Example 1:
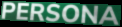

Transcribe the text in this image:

PERSONA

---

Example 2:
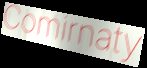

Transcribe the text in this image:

Comirnaty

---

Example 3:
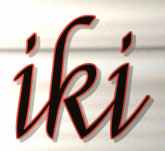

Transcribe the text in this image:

iki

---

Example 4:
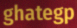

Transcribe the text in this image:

ghategp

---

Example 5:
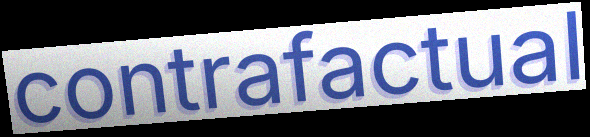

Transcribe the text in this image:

contrafactual